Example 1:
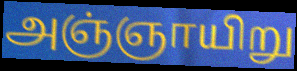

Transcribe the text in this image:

அஞ்ஞாயிறு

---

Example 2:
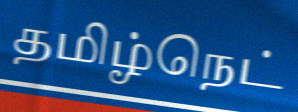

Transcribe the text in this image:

தமிழ்நெட்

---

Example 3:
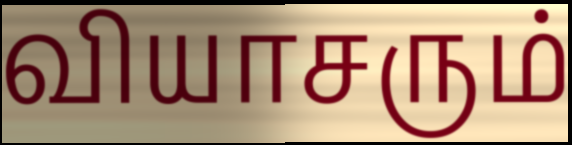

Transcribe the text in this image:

வியாசரும்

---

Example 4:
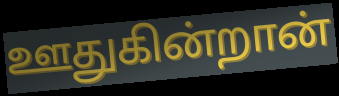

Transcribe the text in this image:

ஊதுகின்றான்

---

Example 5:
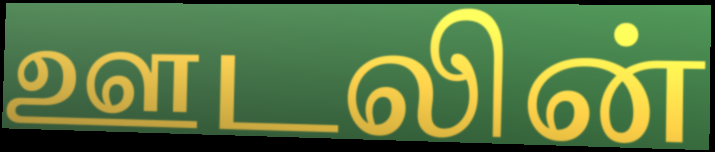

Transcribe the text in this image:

ஊடலின்